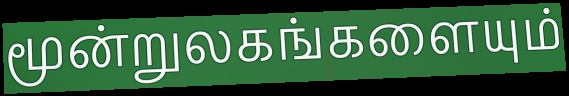
மூன்றுலகங்களையும்